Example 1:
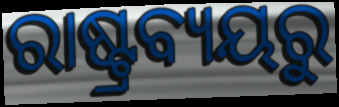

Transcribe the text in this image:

ରାଷ୍ଟ୍ରବ୍ୟୟରୁ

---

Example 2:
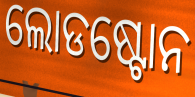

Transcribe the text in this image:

ଲୋଡଷ୍ଟୋନ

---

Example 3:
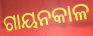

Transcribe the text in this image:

ଗାୟନକାଳ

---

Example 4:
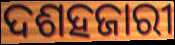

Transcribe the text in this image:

ଦଶହଜାରୀ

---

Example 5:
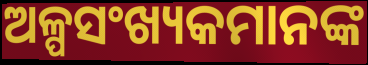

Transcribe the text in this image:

ଅଳ୍ପସଂଖ୍ୟକମାନଙ୍କ